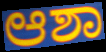
ಆಶಾ